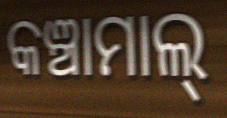
କଞ୍ଚାମାଲ୍